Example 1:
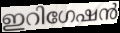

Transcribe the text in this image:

ഇറിഗേഷൻ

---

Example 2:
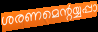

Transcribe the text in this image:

ശരണമെന്റയ്യപ്പാ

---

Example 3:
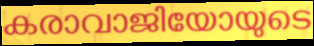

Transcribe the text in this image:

കരാവാജിയോയുടെ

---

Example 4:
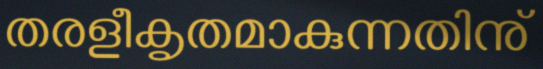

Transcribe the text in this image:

തരളീകൃതമാകുന്നതിനു്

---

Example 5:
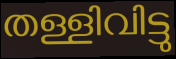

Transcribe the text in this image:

തള്ളിവിട്ടു